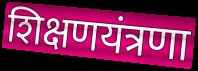
शिक्षणयंत्रणा